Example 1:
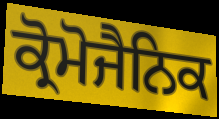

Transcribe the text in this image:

ਕ੍ਰੋਮੋਜੈਨਿਕ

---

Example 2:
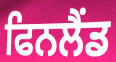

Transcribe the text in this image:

ਫਿਨਲੈਂਡ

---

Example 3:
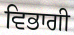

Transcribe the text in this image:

ਵਿਭਾਗੀ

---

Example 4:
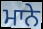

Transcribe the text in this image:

ਮਾਨੇ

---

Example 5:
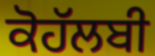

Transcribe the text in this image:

ਕੋਹੱਲਬੀ